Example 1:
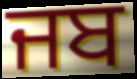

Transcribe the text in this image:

ਜਬ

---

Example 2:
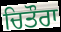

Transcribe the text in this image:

ਚਿਤੌਰਾ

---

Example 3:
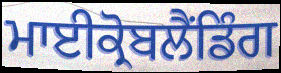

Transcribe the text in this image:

ਮਾਈਕ੍ਰੋਬਲੈਂਡਿੰਗ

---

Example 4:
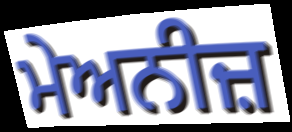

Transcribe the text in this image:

ਮੇਅਨੀਜ਼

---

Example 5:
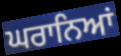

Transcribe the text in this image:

ਘਰਾਨਿਆਂ